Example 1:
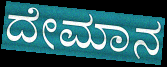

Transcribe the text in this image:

ದೇಮಾನ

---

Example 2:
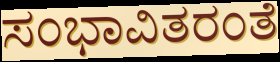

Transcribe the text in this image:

ಸಂಭಾವಿತರಂತೆ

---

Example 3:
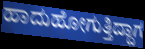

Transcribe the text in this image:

ಹಾದುಹೋಗುತ್ತಿದ್ದಾಗ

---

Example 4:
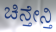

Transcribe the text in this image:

ಚಿನ್ತೇನ್ತಿ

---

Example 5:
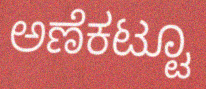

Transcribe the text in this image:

ಅಣೆಕಟ್ಟೂ